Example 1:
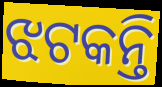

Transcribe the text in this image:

ଝଟକନ୍ତି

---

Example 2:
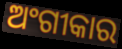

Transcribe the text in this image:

ଅଂଗୀକାର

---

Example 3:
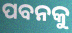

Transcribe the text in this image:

ପବନକୁ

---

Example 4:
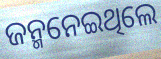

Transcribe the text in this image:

ଜନ୍ମନେଇଥିଲେ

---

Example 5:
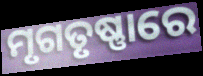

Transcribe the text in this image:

ମୃଗତୃଷ୍ଣାରେ